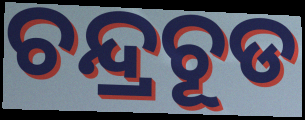
ଚନ୍ଦ୍ରଚୂଡ